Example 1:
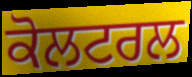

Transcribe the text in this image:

ਕੋਲਟਰਲ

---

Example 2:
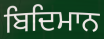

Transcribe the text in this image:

ਬਿਦਿਮਾਨ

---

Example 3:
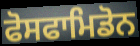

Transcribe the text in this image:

ਫੋਸਫਾਮਿਡੋਨ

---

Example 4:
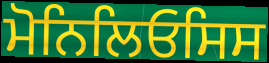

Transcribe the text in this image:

ਮੋਨਿਲਿਓਸਿਸ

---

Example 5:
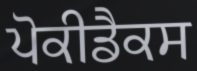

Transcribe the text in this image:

ਪੋਕੀਡੈਕਸ